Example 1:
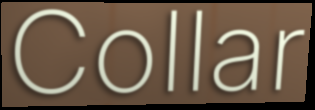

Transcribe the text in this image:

Collar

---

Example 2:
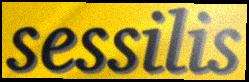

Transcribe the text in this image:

sessilis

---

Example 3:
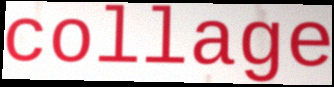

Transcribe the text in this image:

collage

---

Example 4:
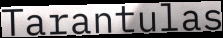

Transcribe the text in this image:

Tarantulas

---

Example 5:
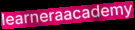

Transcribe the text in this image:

learneraacademy